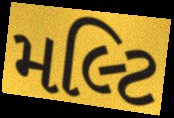
મલ્ટિ